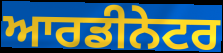
ਆਰਡੀਨੇਟਰ